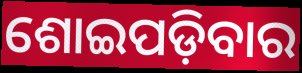
ଶୋଇପଡ଼ିବାର